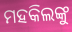
ମହକିଲଙ୍କୁ